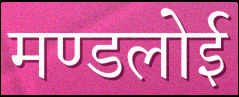
मण्डलोई